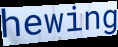
hewing